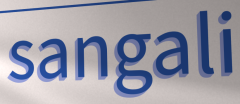
sangali